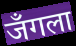
जँगला